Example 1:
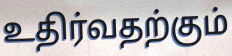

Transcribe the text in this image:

உதிர்வதற்கும்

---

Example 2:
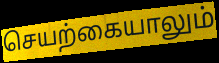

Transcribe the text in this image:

செயற்கையாலும்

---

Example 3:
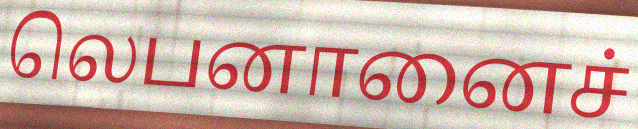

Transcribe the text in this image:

லெபனானைச்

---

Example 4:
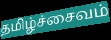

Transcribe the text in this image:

தமிழ்ச்சைவம்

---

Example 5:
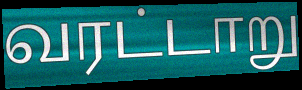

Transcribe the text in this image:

வரட்டாறு